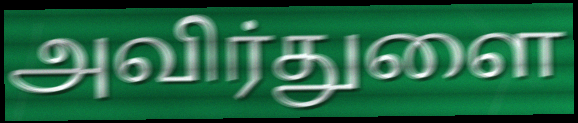
அவிர்துளை